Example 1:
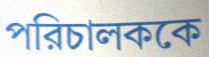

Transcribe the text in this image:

পরিচালককে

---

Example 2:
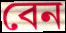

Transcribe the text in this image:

বেন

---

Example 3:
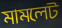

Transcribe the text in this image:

মামলেট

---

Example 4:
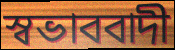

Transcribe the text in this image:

স্বভাববাদী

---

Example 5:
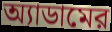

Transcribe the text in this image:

অ্যাডামের